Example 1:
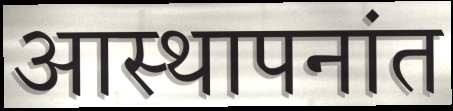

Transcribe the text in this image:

आस्थापनांत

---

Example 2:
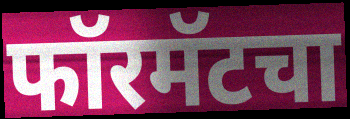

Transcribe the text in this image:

फॉरमॅटचा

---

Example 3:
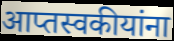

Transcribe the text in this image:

आप्तस्वकीयांना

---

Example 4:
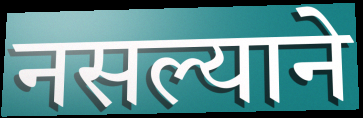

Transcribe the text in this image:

नसल्याने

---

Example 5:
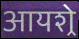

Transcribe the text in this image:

आयश्रे